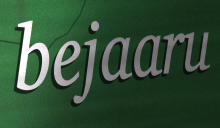
bejaaru